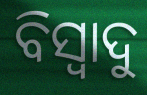
ବିସ୍ୱାଦୁ